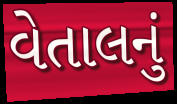
વેતાલનું